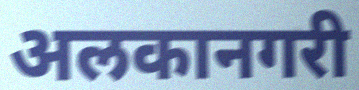
अलकानगरी